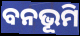
ବନଭୂମି